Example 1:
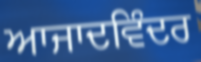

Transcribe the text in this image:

ਆਜਾਦਵਿੰਦਰ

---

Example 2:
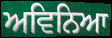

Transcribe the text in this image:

ਅਵਿਨਿਆ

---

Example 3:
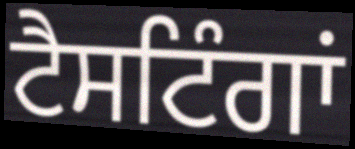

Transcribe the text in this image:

ਟੈਸਟਿੰਗਾਂ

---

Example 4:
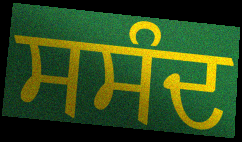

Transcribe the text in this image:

ਸਸੰਦ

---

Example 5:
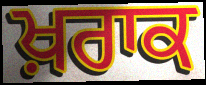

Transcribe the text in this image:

ਖ਼ਰਾਕ